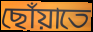
ছোঁয়াতে